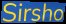
Sirsho